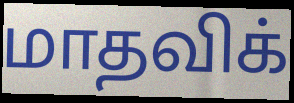
மாதவிக்